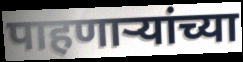
पाहणार्‍यांच्या